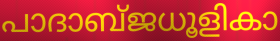
പാദാബ്ജധൂളികാ